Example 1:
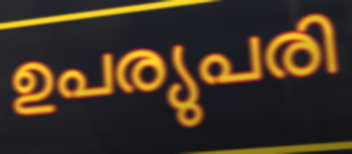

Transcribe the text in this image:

ഉപര്യുപരി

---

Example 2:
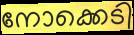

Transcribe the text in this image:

നോക്കെടി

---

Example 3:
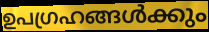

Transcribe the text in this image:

ഉപഗ്രഹങ്ങൾക്കും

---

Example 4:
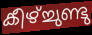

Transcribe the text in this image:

കീഴ്ച്ചുണ്ടു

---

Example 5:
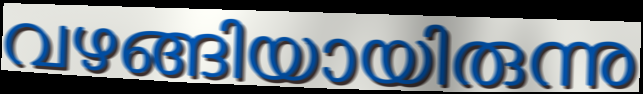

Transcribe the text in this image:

വഴങ്ങിയായിരുന്നു